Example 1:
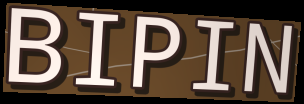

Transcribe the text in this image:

BIPIN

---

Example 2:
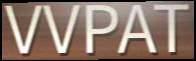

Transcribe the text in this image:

VVPAT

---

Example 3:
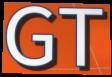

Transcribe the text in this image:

GT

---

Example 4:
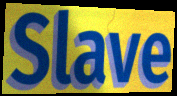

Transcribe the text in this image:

Slave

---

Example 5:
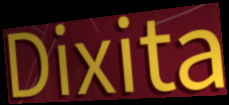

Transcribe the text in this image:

Dixita